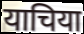
याचिया